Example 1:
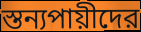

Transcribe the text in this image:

স্তন্যপায়ীদের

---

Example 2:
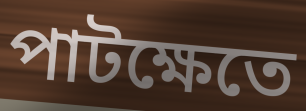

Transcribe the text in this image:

পাটক্ষেতে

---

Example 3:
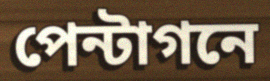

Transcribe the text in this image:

পেন্টাগনে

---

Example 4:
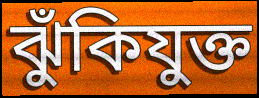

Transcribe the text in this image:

ঝুঁকিযুক্ত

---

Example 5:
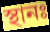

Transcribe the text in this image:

স্থানঃ